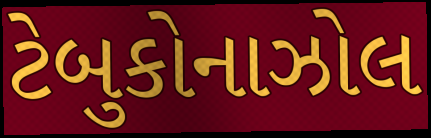
ટેબુકોનાઝોલ